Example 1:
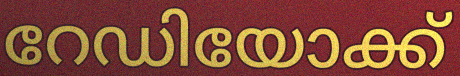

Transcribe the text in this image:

റേഡിയോക്ക്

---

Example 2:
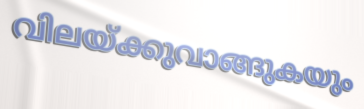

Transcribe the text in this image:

വിലയ്ക്കുവാങ്ങുകയും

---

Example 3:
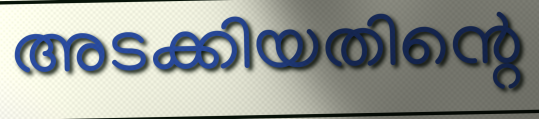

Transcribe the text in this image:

അടക്കിയതിന്റെ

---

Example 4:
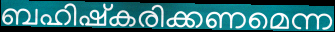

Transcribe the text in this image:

ബഹിഷ്കരിക്കണമെന്ന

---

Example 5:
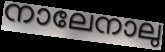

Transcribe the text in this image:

നാലേനാലു